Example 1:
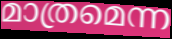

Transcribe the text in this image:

മാത്രമെന്ന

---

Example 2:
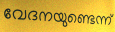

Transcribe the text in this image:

വേദനയുണ്ടെന്ന്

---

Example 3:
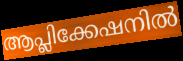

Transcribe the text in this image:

ആപ്ലിക്കേഷനിൽ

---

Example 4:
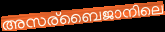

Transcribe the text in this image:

അസര്ബൈജാനിലെ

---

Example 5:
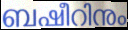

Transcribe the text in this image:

ബഷീറിനും